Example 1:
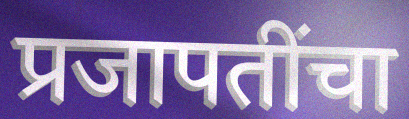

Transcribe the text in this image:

प्रजापतींचा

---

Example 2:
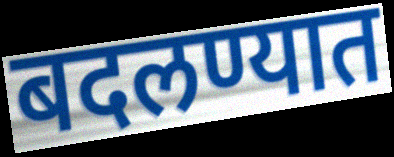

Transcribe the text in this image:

बदलण्यात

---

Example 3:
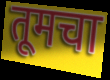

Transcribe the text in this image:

तूमचा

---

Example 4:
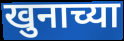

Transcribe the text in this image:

खुनाच्या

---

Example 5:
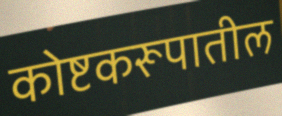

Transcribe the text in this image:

कोष्टकरूपातील